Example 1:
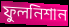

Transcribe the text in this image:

ফুলনিশান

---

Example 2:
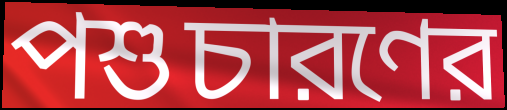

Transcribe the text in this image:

পশুচারণের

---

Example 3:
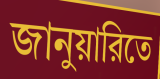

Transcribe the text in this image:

জানুয়ারিতে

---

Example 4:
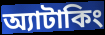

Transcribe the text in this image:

অ্যাটাকিং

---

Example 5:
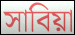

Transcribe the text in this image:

সাবিয়া